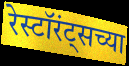
रेस्टॉरंट्सच्या